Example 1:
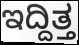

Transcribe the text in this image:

ಇದ್ದಿತ್ತ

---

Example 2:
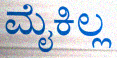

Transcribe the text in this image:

ಮೈಕಿಲ್ಲ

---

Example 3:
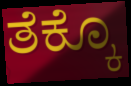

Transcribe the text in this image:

ತೆಕ್ಕೊ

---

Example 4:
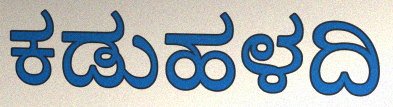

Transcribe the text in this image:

ಕಡುಹಳದಿ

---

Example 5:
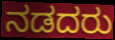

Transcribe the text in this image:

ನಡದರು